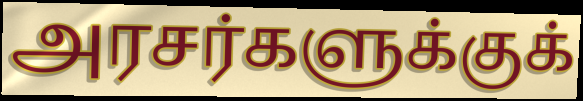
அரசர்களுக்குக்